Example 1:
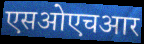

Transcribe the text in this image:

एसओएचआर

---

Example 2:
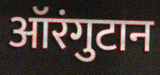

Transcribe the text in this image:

ऑरंगुटान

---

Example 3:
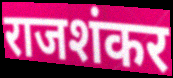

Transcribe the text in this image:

राजशंकर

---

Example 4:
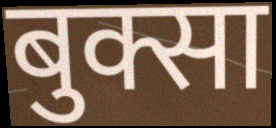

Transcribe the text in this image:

बुक्सा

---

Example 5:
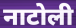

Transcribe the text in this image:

नाटोली